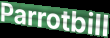
Parrotbill